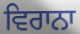
ਵਿਰਾਨਾ